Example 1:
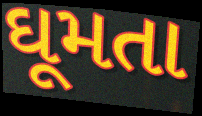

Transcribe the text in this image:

ઘૂમતા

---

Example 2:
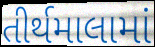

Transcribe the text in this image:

તીર્થમાલામાં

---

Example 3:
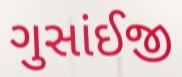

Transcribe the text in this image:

ગુસાંઈજી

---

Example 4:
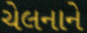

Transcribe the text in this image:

ચેલનાને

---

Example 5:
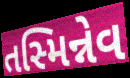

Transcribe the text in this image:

તસ્મિન્નેવ